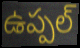
ఉప్పల్